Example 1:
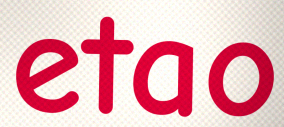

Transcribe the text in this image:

etao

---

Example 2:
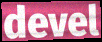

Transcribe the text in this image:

devel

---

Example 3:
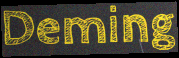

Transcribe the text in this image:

Deming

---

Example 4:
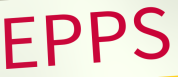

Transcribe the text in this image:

EPPS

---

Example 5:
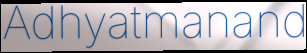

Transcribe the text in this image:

Adhyatmanand